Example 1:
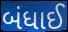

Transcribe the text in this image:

બંધાઈ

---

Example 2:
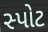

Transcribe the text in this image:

સ્પોટ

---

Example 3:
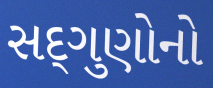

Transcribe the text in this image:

સદ્‌ગુણોનો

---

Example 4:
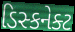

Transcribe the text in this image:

ડિસ્કનેક્ટ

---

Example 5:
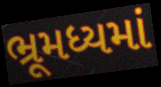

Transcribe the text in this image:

ભ્રૂમધ્યમાં